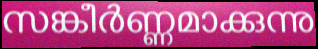
സങ്കീർണ്ണമാക്കുന്നു